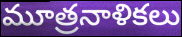
మూత్రనాళికలు